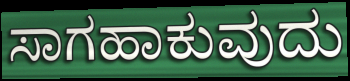
ಸಾಗಹಾಕುವುದು